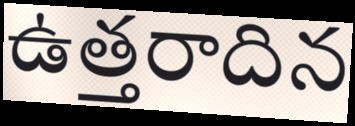
ఉత్తరాదిన